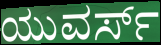
ಯುವರ್ಸ್